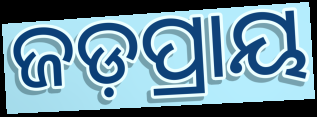
ଜଡ଼ପ୍ରାୟ